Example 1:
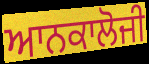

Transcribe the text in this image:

ਆਨਕਾਲੋਜੀ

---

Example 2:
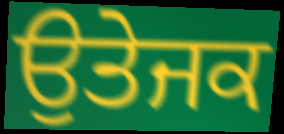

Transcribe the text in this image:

ਉਤੇਜਕ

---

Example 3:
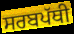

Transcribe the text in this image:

ਸਰਬਪੱਥੀ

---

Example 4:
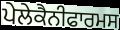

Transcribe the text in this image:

ਪੇਲੇਕੈਨੀਫਾਰਮਸ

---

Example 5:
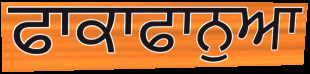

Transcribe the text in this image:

ਫਾਕਾਫਾਨੁਆ